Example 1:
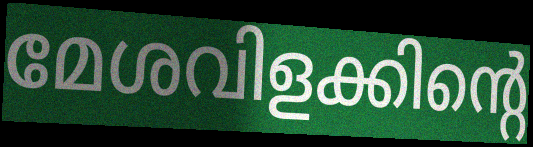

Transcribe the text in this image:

മേശവിളക്കിന്റെ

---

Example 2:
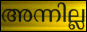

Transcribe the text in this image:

അന്നില്ല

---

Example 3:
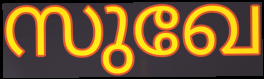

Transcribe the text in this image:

സുഖേ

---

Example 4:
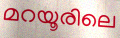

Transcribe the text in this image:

മറയൂരിലെ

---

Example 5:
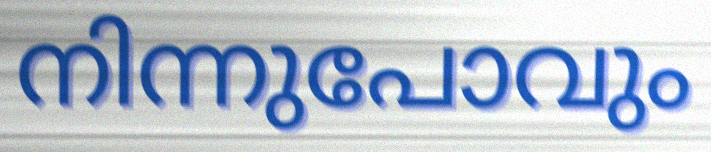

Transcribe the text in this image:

നിന്നുപോവും